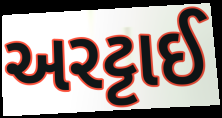
અરટ્ટાઈ